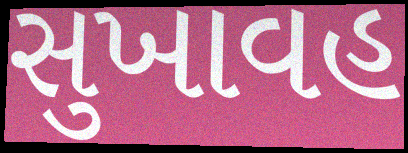
સુખાવહ